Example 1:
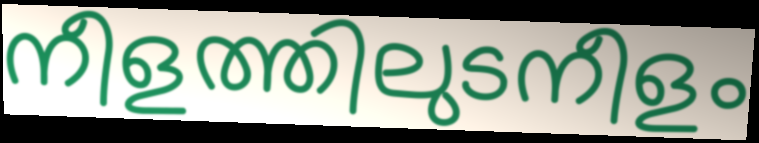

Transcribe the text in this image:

നീളത്തിലുടനീളം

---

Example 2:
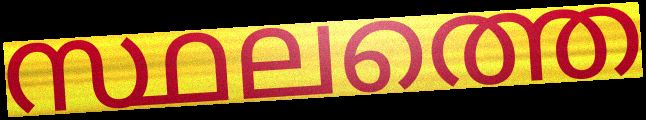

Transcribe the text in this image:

സ്ഥലത്തെ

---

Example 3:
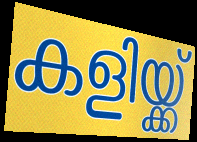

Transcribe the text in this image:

കളിയ്ക്ക്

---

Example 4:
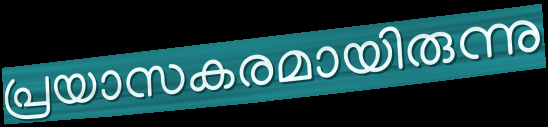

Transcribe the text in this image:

പ്രയാസകരമായിരുന്നു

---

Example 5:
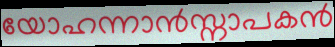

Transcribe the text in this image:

യോഹന്നാൻസ്നാപകൻ